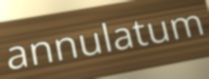
annulatum